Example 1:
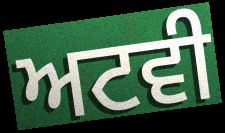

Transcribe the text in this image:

ਅਟਵੀ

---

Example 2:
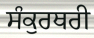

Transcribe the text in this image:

ਸੰਕੁਰਥਰੀ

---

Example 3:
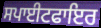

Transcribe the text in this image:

ਸਪਾਈਟਫਾਇਰ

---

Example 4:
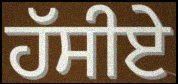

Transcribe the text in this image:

ਹੱਸੀਏ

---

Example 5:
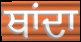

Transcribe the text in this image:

ਥਾਂਦਾ